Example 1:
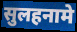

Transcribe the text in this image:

सुलहनामे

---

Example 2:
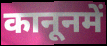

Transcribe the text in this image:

कानूनमें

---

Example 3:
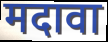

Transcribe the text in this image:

मदावा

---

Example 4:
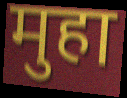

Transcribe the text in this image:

मुहा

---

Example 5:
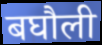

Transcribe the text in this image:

बघौली